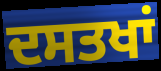
ਦਸਤਖਾਂ